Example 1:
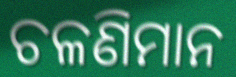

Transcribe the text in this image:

ଚଳଣିମାନ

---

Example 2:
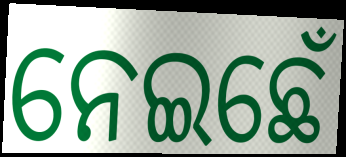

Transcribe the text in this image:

ନେଇଛେଁ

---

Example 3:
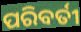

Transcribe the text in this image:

ପରିବର୍ତୀ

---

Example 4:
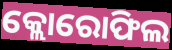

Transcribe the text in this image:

କ୍ଲୋରୋଫିଲ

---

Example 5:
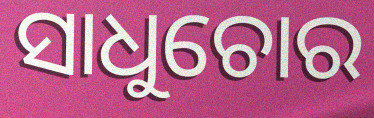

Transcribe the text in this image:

ସାଧୁଚୋର